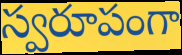
స్వరూపంగా